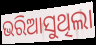
ଭରିଆସୁଥିଲା